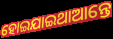
ହୋଇଯାଇଥାଆନ୍ତେ